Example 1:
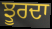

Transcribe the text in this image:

ਝੂਰਦਾ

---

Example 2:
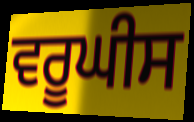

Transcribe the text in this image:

ਵਰੂਘੀਸ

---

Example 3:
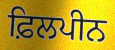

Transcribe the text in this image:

ਫ਼ਿਲਪੀਨ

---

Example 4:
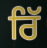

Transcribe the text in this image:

ਰਿੱ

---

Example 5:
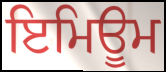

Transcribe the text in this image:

ਇਮਿਊਮ